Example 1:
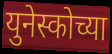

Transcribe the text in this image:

युनेस्कोच्या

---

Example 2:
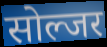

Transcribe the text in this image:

सोल्जर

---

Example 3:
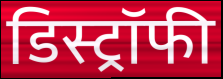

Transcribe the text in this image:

डिस्ट्रॉफी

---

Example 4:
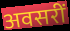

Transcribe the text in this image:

अवसरीं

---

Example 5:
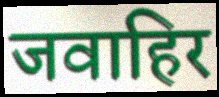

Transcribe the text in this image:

जवाहिर